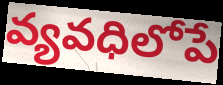
వ్యవధిలోపే